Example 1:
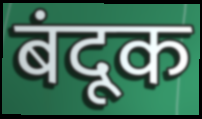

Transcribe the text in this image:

बंदूक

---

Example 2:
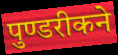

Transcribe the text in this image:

पुण्डरीकने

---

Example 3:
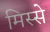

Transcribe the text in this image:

मिस्से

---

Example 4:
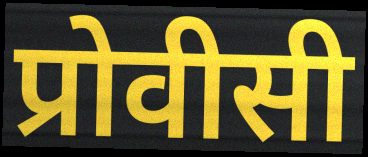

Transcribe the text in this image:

प्रोवीसी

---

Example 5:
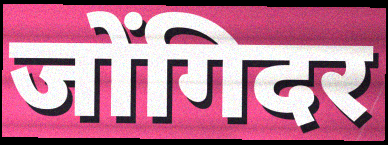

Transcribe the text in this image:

जोंगिदर